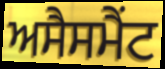
ਅਸੈਸਮੈਂਟ